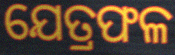
ଯେତ୍ରଫଳ